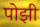
पोझी